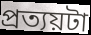
প্রত্যয়টা